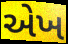
એખ